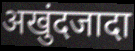
अखुंदजादा